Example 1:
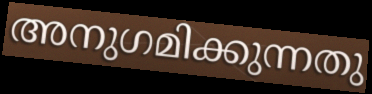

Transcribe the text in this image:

അനുഗമിക്കുന്നതു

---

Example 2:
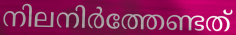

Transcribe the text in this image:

നിലനിർത്തേണ്ടത്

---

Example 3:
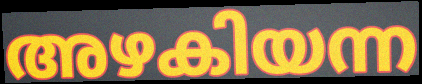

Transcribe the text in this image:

അഴകിയന്ന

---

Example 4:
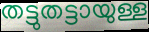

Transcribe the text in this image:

തട്ടുതട്ടായുള്ള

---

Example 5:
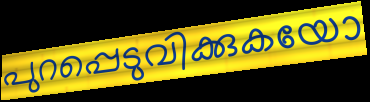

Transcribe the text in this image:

പുറപ്പെടുവിക്കുകയോ